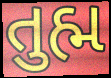
તુહ્મ